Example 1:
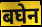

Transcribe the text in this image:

बघेन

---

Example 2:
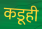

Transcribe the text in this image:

कडूही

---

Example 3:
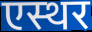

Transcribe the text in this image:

एस्थर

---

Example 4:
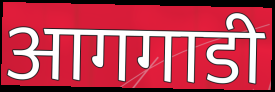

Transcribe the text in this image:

आगगाडी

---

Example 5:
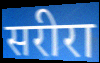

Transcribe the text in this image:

सरीरा